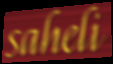
saheli